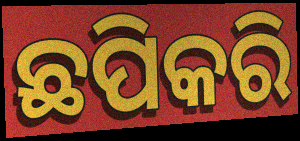
ଛପିକରି